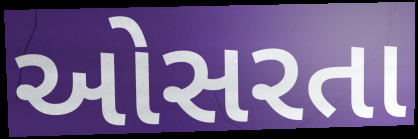
ઓસરતા